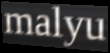
malyu